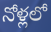
నోళ్లలో